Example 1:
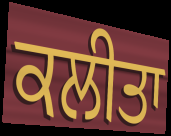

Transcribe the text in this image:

ਕਲੀਤਾ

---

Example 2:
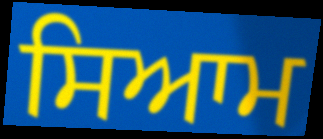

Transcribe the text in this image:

ਸਿਆਮ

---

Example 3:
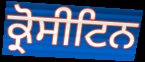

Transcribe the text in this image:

ਕ੍ਰੋਸੀਟਿਨ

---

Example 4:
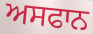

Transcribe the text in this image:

ਅਸਫਾਨ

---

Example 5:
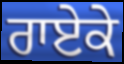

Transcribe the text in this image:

ਰਾਏਕੇ